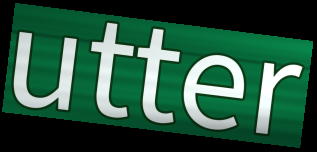
utter